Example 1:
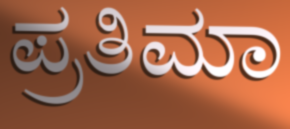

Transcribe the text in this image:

ಪ್ರತಿಮಾ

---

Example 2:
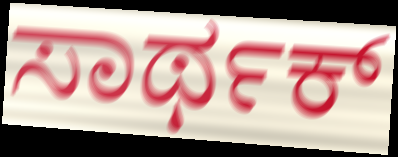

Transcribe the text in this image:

ಸಾರ್ಥಕ್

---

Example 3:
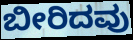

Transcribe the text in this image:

ಬೀರಿದವು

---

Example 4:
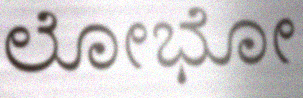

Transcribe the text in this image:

ಲೋಭೋ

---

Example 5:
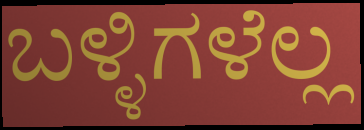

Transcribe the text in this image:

ಬಳ್ಳಿಗಳೆಲ್ಲ